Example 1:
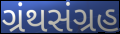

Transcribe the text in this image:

ગ્રંથસંગ્રહ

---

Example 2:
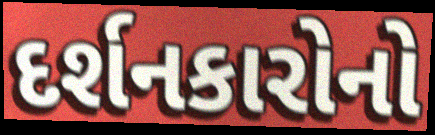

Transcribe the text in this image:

દર્શનકારોનો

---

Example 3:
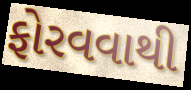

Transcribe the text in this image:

ફોરવવાથી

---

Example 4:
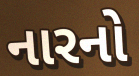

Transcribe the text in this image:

નારનો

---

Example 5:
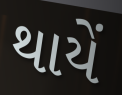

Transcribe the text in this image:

થાયેં